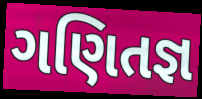
ગણિતજ્ઞ